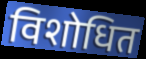
विशोधित